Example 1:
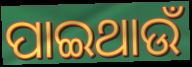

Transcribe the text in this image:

ପାଇଥାଉଁ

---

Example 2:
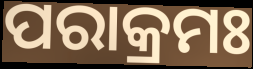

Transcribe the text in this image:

ପରାକ୍ରମଃ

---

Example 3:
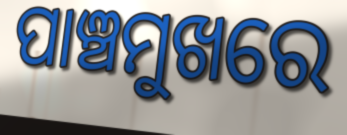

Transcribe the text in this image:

ପାଞ୍ଚମୁଖରେ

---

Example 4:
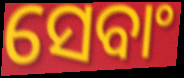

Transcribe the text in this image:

ସେବାଂ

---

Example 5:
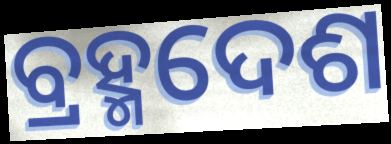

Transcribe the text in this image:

ବ୍ରହ୍ମଦେଶ